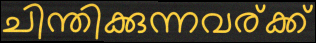
ചിന്തിക്കുന്നവര്ക്ക്